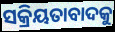
ସକ୍ରିୟତାବାଦକୁ